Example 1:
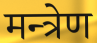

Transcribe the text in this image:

मन्त्रेण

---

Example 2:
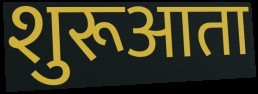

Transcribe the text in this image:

शुरूआता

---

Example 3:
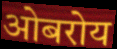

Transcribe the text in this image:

ओबरोय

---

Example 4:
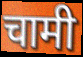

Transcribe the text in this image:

चामी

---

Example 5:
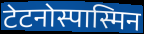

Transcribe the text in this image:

टेटनोस्पास्मिन